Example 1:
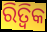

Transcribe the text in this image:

ରିତ୍ୱିକ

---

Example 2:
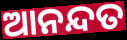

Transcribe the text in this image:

ଆନନ୍ଦତ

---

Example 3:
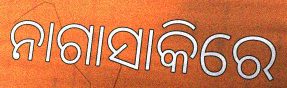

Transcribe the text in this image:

ନାଗାସାକିରେ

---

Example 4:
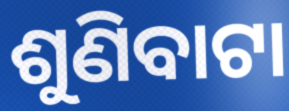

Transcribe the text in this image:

ଶୁଣିବାଟା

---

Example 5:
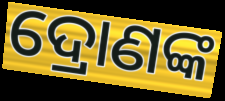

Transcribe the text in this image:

ଦ୍ରୋଣଙ୍କ